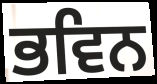
ਭਵਿਨ